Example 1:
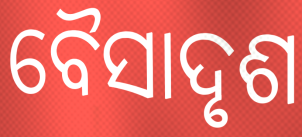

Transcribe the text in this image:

ବୈସାଦୃଶ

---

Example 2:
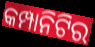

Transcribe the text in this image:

କମ୍ପାନିଟିର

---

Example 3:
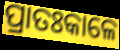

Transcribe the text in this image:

ପ୍ରାତଃକାଳେ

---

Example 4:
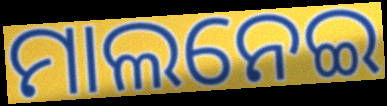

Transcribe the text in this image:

ମାଲନେଇ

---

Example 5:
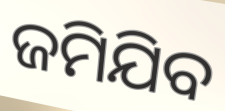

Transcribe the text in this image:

ଜମିଯିବ